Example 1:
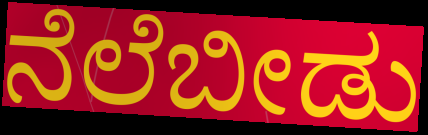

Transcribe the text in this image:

ನೆಲೆಬೀಡು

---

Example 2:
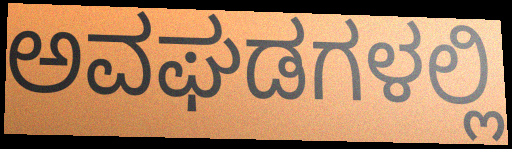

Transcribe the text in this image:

ಅವಘಡಗಳಲ್ಲಿ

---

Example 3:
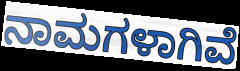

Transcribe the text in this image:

ನಾಮಗಳಾಗಿವೆ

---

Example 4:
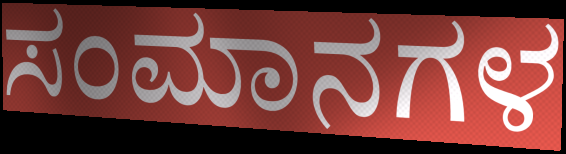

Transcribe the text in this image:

ಸಂಮಾನಗಳ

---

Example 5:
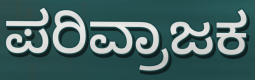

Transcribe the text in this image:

ಪರಿವ್ರಾಜಕ